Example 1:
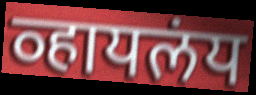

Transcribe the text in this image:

व्हायलंय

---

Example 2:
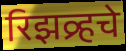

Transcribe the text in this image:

रिझव्र्हचे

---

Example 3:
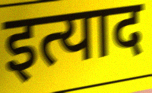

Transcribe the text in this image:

इत्याद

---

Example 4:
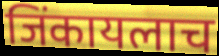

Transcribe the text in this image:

जिंकायलाच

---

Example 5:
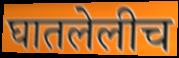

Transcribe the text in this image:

घातलेलीच